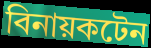
বিনায়কটেন